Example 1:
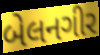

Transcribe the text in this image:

બેલનગીર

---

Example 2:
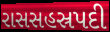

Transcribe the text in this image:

રાસસહસ્રપદી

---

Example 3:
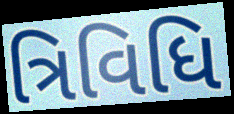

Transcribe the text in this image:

ત્રિવિધિ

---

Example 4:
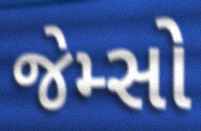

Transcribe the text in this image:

જેમ્સો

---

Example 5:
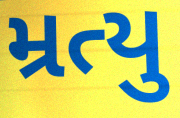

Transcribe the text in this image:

મ્રત્યુ